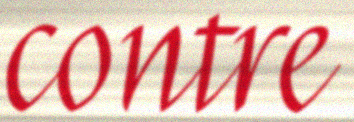
contre